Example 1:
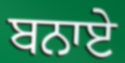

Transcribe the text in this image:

ਬਨਾਏ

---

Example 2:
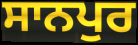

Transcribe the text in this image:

ਸਾਨਪੁਰ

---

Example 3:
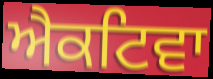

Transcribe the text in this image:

ਐਕਟਿਵਾ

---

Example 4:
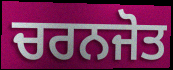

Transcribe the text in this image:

ਚਰਨਜੋਤ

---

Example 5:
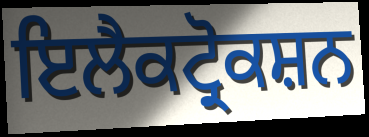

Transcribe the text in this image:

ਇਲੈਕਟ੍ਰੋਕਸ਼ਨ